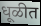
धूळीत